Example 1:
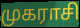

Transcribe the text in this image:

முகராசி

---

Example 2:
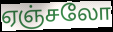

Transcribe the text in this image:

ஏஞ்சலோ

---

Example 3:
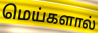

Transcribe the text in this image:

மெய்களால்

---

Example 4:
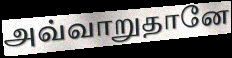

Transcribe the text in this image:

அவ்வாறுதானே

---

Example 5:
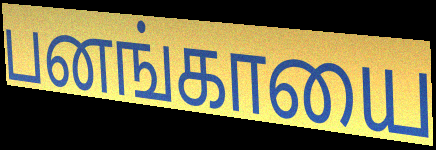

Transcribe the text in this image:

பனங்காயை